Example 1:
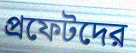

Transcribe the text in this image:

প্রফেটদের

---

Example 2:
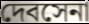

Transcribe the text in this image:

দেবসেনা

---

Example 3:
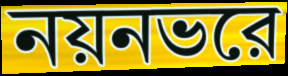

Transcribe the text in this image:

নয়নভরে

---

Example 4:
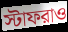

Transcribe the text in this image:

স্টাফরাও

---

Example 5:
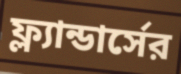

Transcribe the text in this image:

ফ্ল্যান্ডার্সের